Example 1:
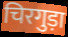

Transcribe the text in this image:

चिरगुड़ा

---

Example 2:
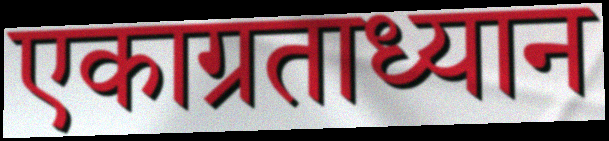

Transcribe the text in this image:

एकाग्रताध्यान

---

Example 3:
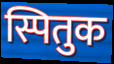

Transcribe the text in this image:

स्पितुक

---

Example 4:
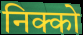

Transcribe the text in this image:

निक्को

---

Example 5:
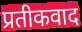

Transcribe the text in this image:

प्रतीकवाद